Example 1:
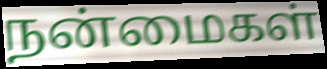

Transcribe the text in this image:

நன்மைகள்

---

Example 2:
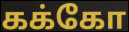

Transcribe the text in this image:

கக்கோ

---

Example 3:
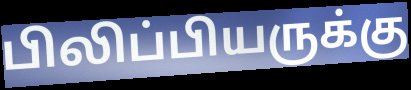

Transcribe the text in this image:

பிலிப்பியருக்கு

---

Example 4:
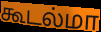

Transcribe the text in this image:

கூடல்மா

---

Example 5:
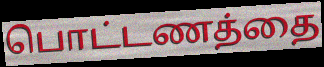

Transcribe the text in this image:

பொட்டணத்தை